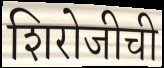
शिरोजीची